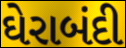
ઘેરાબંદી